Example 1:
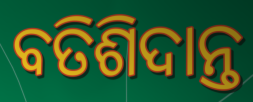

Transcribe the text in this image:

ବତିଶିଦାନ୍ତ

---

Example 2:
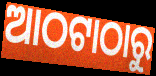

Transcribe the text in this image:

ଆଠଟାଠାରୁ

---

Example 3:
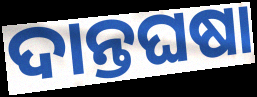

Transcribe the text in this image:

ଦାନ୍ତଘଷା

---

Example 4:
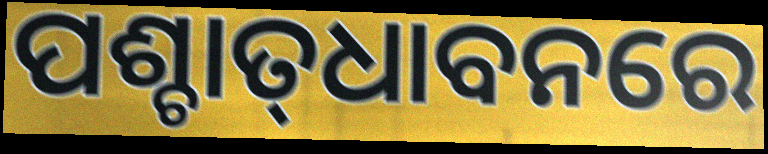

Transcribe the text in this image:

ପଶ୍ଚାତ୍‍ଧାବନରେ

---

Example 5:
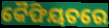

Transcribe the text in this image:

କୈଫିୟତରେ